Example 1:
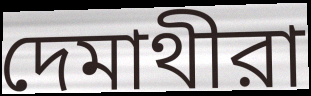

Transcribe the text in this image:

দেমাথীরা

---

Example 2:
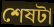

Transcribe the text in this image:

শেষটা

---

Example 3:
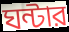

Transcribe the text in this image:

ঘন্টার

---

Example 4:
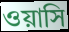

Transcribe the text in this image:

ওয়াসি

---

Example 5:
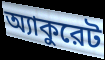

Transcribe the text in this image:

অ্যাকুরেট